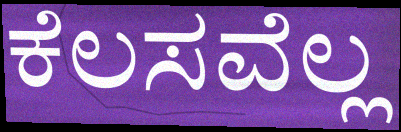
ಕೆಲಸವೆಲ್ಲ